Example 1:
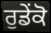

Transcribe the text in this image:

ਰੁਡੇਂਕੋ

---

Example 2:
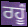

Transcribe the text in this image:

ਰਹੂੰ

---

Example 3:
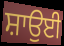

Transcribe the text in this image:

ਸ਼ਾਉਈ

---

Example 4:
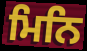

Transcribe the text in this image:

ਮਿਨਿ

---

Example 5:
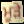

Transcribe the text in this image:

ਮੂੜੇ